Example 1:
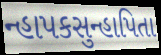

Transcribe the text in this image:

ન્હાપકસુન્હાપિતા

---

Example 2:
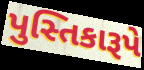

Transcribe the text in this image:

પુસ્તિકારૂપે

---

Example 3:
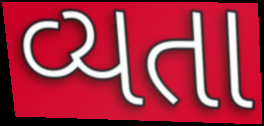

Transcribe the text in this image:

વ્યતા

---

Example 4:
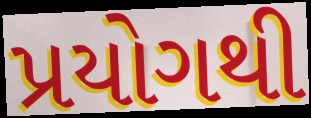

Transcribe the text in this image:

પ્રયોગથી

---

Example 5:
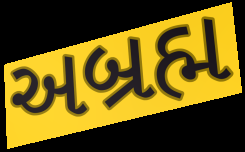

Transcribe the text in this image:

અબ્રહ્મ